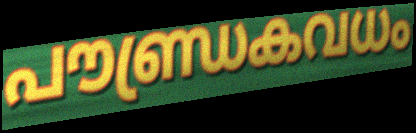
പൗണ്ഡ്രകവധം